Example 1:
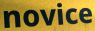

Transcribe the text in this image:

novice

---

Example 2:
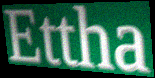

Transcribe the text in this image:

Ettha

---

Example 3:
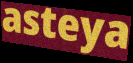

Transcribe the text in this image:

asteya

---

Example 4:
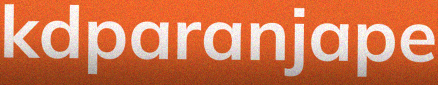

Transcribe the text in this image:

kdparanjape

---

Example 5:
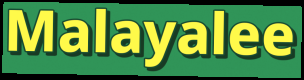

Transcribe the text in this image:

Malayalee